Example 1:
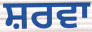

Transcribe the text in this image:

ਸ਼ਰਵਾ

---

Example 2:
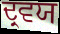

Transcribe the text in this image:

ਦ੍ਰਵਯ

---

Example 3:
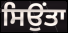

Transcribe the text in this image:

ਸਿਉਂਤਾ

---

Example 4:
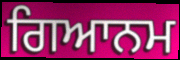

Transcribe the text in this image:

ਗਿਆਨਮ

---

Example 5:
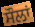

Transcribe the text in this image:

ਸੌਲਾਂ